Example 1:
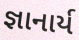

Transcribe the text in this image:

જ્ઞાનાર્ય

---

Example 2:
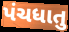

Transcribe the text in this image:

પંચધાતુ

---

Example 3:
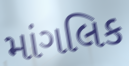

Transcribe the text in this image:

માંગલિક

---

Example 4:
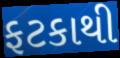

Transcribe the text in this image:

ફટકાથી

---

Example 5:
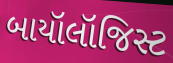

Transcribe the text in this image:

બાયૉલૉજિસ્ટ